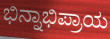
ಭಿನ್ನಾಭಿಪ್ರಾಯ